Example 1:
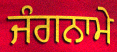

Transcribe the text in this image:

ਜੰਗਨਾਮੇ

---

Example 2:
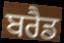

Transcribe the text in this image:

ਬਰੈਡ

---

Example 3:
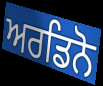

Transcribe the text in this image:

ਅਰਡਿਨੋ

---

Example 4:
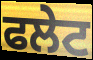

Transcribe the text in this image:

ਫਲੇਟ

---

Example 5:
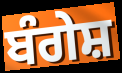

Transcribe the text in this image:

ਬੰਗੇਸ਼